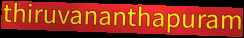
thiruvananthapuram